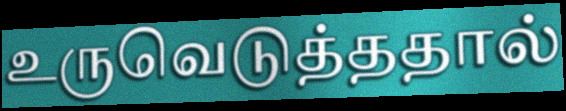
உருவெடுத்ததால்